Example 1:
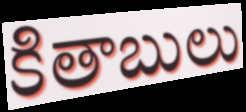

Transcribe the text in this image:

కితాబులు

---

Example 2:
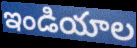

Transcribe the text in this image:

ఇండియాల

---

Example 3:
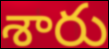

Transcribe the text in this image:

శారు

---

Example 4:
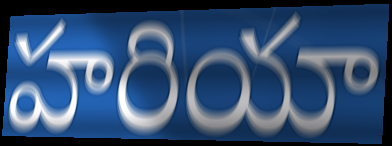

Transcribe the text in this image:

హరియా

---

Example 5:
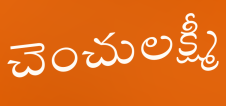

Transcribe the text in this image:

చెంచులక్ష్మీ